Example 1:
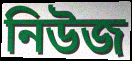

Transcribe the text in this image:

নিউজ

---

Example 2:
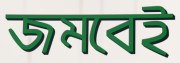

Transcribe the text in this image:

জমবেই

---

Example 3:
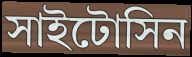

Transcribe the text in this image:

সাইটোসিন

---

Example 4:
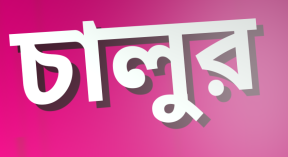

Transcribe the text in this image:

চালুর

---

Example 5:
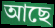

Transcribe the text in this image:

আছে